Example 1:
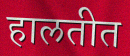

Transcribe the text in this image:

हालतीत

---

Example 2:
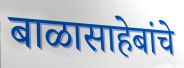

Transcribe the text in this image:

बाळासाहेबांचे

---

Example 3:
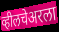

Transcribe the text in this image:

व्हीलचेअरला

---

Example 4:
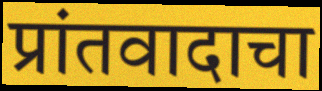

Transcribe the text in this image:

प्रांतवादाचा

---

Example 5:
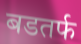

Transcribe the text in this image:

बडतर्फ